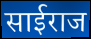
साईराज